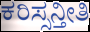
ಕರಿಸ್ಸನ್ತೀತಿ